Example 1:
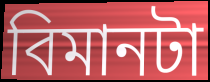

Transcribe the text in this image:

বিমানটা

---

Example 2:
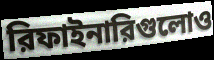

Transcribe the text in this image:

রিফাইনারিগুলোও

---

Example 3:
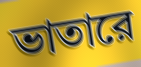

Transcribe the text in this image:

ভাতারে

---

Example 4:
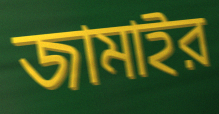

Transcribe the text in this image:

জামাইর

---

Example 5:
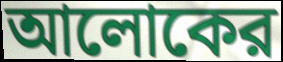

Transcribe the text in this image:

আলোকের